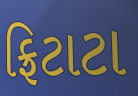
ફ્રિટાટા